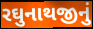
રઘુનાથજીનું